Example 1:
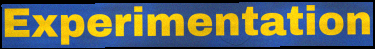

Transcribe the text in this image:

Experimentation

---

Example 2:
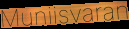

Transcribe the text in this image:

Muniisvaran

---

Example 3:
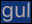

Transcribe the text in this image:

gul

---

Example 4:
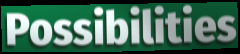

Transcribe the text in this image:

Possibilities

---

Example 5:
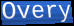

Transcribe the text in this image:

Overy